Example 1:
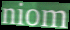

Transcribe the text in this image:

niom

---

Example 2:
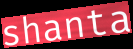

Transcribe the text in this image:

shanta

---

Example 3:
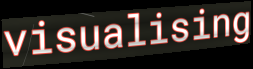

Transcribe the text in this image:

visualising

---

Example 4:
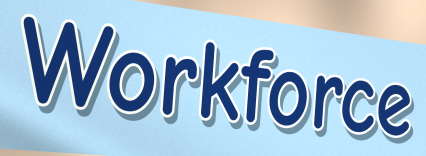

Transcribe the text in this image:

Workforce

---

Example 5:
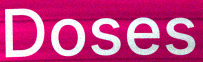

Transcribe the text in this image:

Doses